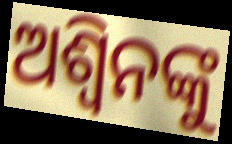
ଅଶ୍ବିନଙ୍କୁ